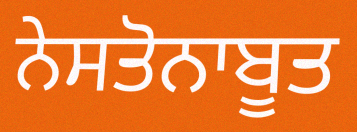
ਨੇਸਤੋਨਾਬੂਤ